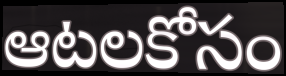
ఆటలకోసం